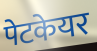
पेटकेयर